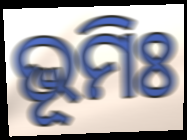
ଭୂମିଃ